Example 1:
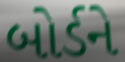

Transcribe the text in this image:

બોર્ડને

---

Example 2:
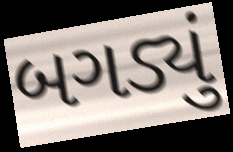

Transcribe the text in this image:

બગડ્યું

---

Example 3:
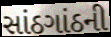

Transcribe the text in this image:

સાંઠગાંઠની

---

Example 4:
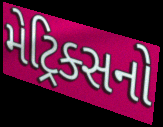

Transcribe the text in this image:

મેટ્રિક્સનો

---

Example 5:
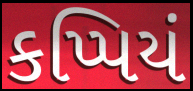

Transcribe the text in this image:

કપ્પિયં